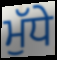
ਮੁੱਧੇ